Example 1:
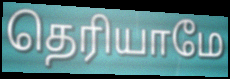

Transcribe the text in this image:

தெரியாமே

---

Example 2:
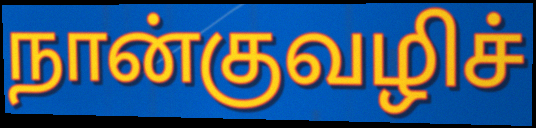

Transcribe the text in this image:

நான்குவழிச்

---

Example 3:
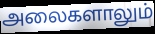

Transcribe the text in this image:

அலைகளாலும்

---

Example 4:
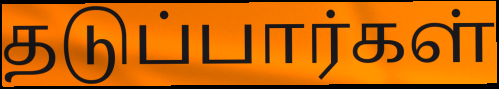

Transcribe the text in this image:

தடுப்பார்கள்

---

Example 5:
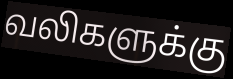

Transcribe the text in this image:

வலிகளுக்கு